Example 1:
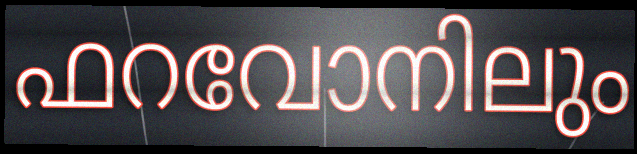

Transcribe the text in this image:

ഫറവോനിലും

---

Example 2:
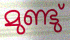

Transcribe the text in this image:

മുണ്ടു്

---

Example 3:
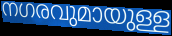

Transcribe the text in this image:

നഗരവുമായുള്ള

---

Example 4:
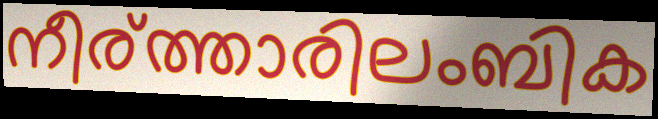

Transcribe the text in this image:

നീര്ത്താരിലംബിക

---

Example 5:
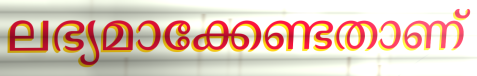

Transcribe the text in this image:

ലഭ്യമാക്കേണ്ടതാണ്